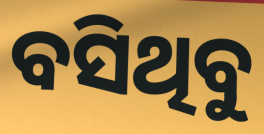
ବସିଥିବୁ